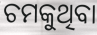
ଚମକୁଥିବା